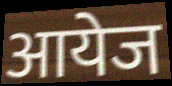
आयेज